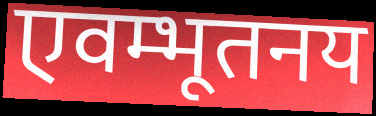
एवम्भूतनय